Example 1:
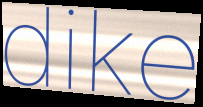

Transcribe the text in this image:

dike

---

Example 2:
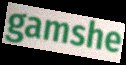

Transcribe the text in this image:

gamshe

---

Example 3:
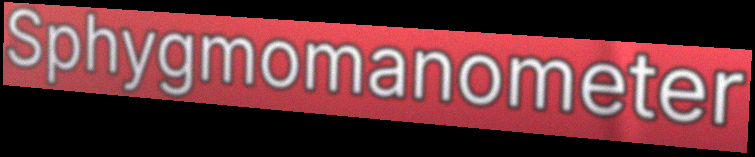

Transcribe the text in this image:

Sphygmomanometer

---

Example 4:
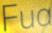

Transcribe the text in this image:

Fua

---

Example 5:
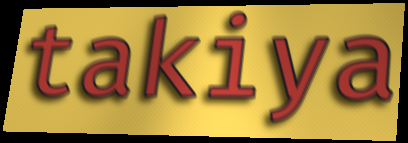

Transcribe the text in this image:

takiya